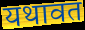
यथावत